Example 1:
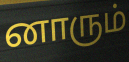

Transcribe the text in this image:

னாரும்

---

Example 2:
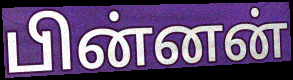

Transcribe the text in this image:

பின்னன்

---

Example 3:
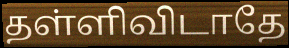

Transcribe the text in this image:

தள்ளிவிடாதே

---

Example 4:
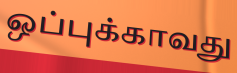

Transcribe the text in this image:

ஒப்புக்காவது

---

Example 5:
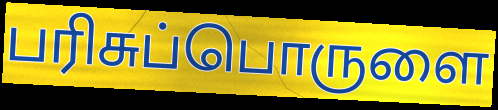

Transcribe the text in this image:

பரிசுப்பொருளை